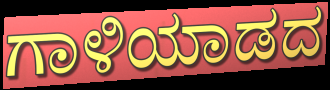
ಗಾಳಿಯಾಡದ